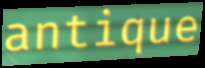
antique